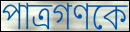
পাত্রগণকে